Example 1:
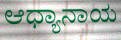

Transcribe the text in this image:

ಆಧ್ಯಾನಾಯ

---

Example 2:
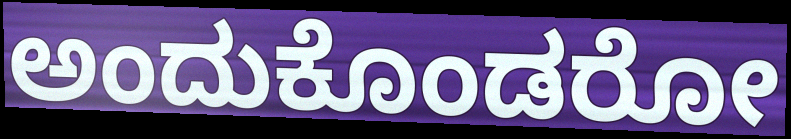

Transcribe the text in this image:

ಅಂದುಕೊಂಡರೋ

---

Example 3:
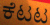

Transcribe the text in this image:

ಕೆಟಟ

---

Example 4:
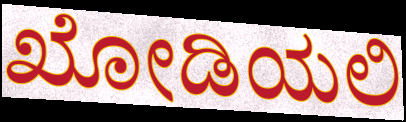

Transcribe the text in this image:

ಖೋಡಿಯಲಿ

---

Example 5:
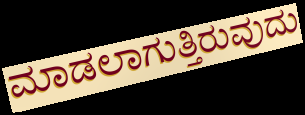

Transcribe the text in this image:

ಮಾಡಲಾಗುತ್ತಿರುವುದು